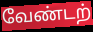
வேண்டற்